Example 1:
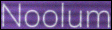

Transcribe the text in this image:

Noolum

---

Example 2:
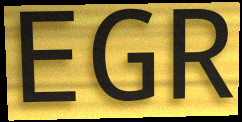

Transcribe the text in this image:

EGR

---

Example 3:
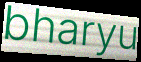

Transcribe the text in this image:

bharyu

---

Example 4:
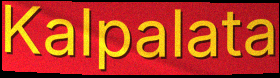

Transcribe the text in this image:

Kalpalata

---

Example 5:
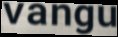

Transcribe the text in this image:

vangu